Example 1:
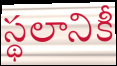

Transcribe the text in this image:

స్థలానికీ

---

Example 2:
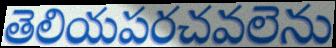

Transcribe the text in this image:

తెలియపరచవలెను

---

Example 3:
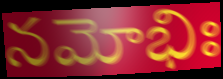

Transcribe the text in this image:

నమోభిః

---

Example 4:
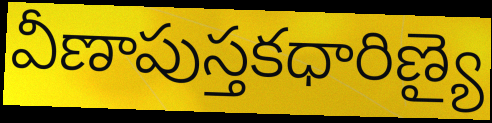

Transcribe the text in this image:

వీణాపుస్తకధారిణ్యై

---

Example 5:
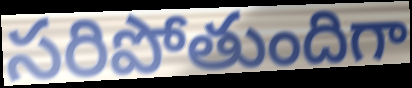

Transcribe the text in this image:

సరిపోతుందిగా